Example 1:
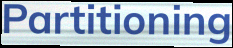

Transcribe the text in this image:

Partitioning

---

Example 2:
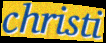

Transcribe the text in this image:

christi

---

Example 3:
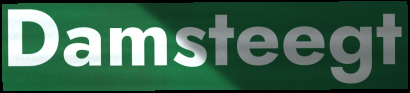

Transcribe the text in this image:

Damsteegt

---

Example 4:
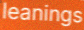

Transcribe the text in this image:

leanings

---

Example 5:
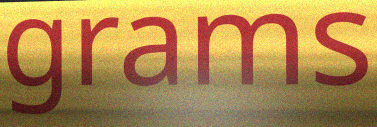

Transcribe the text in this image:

grams